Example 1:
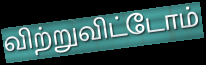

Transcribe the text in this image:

விற்றுவிட்டோம்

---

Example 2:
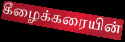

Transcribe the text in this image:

கீழைக்கரையின்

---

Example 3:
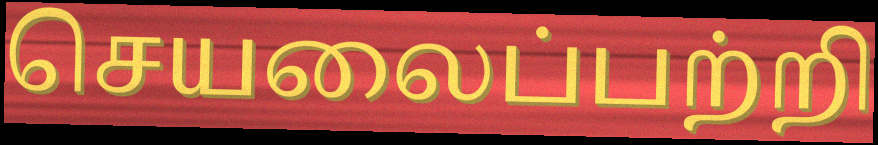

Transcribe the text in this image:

செயலைப்பற்றி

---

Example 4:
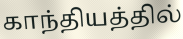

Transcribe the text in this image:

காந்தியத்தில்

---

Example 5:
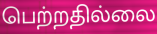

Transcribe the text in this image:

பெற்றதில்லை